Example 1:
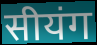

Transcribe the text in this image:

सीयंग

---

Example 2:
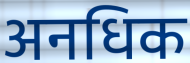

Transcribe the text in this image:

अनधिक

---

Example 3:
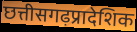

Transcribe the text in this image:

छत्तीसगढ़प्रादेशिक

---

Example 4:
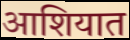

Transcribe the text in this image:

आशियात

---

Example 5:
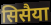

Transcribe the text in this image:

सिसैया